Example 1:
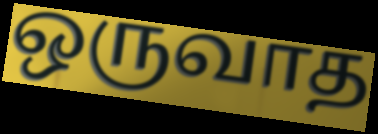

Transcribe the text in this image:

ஒருவாத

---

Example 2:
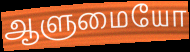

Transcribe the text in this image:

ஆளுமையோ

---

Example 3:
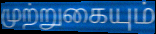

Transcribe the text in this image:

முற்றுகையும்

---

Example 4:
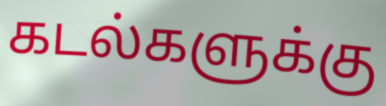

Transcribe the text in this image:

கடல்களுக்கு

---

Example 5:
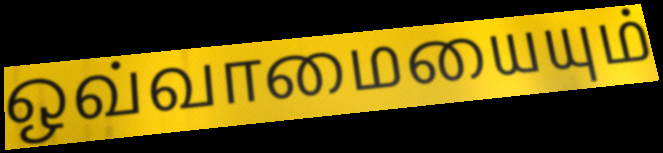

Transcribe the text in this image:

ஒவ்வாமையையும்